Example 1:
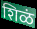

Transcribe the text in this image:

शिळं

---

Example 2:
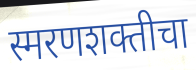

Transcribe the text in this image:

स्मरणशक्तीचा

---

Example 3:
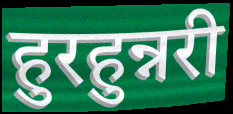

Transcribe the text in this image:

हुरहुन्नरी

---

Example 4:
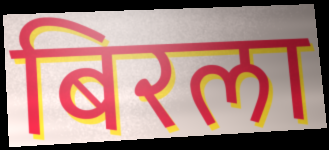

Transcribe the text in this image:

बिरला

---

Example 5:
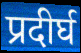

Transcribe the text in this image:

प्रदीर्घ